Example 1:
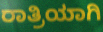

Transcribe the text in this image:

ರಾತ್ರಿಯಾಗಿ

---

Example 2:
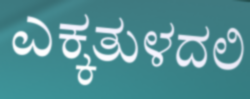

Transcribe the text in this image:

ಎಕ್ಕತುಳದಲಿ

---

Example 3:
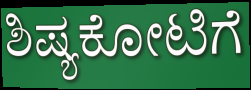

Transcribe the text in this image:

ಶಿಷ್ಯಕೋಟಿಗೆ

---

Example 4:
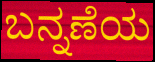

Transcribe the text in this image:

ಬನ್ನಣೆಯ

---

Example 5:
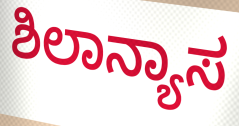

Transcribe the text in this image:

ಶಿಲಾನ್ಯಾಸ